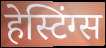
हेस्टिंग्स